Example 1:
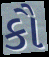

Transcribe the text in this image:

કૌ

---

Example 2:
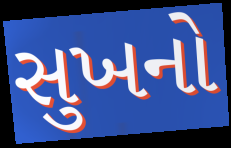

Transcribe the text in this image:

સુખનો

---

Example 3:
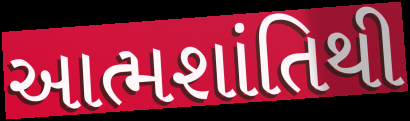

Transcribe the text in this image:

આત્મશાંતિથી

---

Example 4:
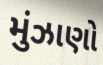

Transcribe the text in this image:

મુંઝાણો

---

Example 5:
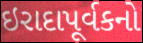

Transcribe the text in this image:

ઇરાદાપૂર્વકનો